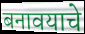
बनावयाचे